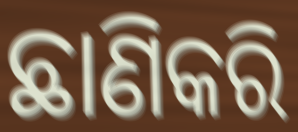
ଛାଣିକରି